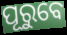
ପୂରୁବେ